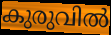
കുരുവിൽ